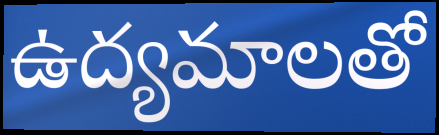
ఉద్యమాలతో